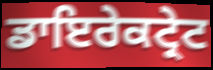
ਡਾਇਰੇਕਟ੍ਰੇਟ